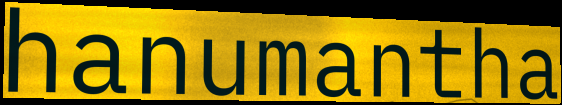
hanumantha